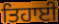
ਤਿਹਾਈ